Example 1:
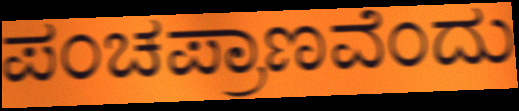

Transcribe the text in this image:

ಪಂಚಪ್ರಾಣವೆಂದು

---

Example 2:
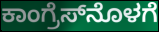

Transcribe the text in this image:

ಕಾಂಗ್ರೆಸ್‌ನೊಳಗೆ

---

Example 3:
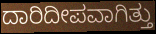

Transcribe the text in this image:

ದಾರಿದೀಪವಾಗಿತ್ತು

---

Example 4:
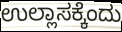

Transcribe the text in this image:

ಉಲ್ಲಾಸಕ್ಕೆಂದು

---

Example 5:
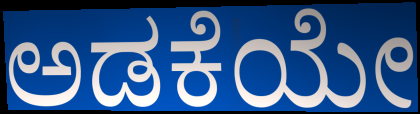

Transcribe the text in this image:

ಅಡಕೆಯೇ